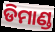
ଡିମାଣ୍ଡ